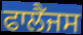
ਫਾਲੈਂਜਸ